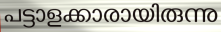
പട്ടാളക്കാരായിരുന്നു